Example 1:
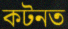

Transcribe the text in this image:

কটনত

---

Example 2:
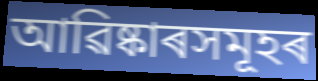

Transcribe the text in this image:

আৱিষ্কাৰসমূহৰ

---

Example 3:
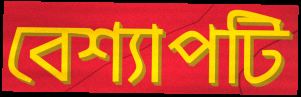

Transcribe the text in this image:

বেশ্যাপটি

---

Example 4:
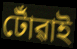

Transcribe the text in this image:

টোঁৱাই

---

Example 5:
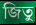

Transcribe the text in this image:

জিতু